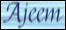
Ajeem